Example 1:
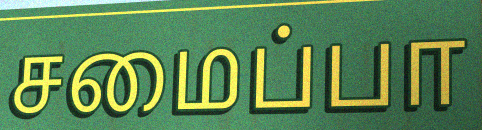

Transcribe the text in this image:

சமைப்பா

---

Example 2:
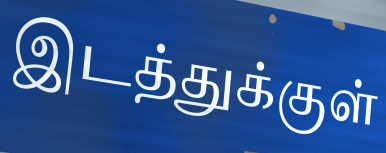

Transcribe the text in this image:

இடத்துக்குள்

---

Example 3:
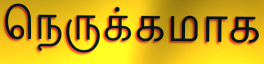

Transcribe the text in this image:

நெருக்கமாக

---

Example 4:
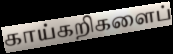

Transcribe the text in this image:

காய்கறிகளைப்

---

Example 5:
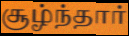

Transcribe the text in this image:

சூழ்ந்தார்